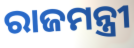
ରାଜମନ୍ତ୍ରୀ